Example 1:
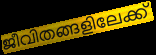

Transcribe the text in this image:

ജീവിതങ്ങളിലേക്ക്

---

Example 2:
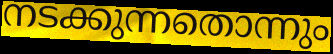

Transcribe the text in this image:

നടക്കുന്നതൊന്നും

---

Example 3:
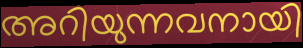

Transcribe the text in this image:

അറിയുന്നവനായി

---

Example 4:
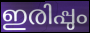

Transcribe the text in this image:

ഇരിപ്പും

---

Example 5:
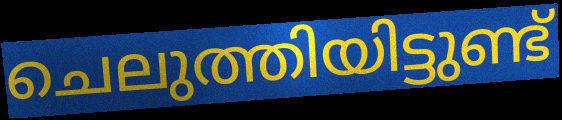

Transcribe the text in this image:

ചെലുത്തിയിട്ടുണ്ട്